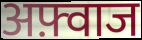
अफ़्वाज